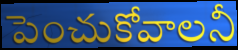
పెంచుకోవాలనీ